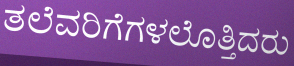
ತಲೆವರಿಗೆಗಳಲೊತ್ತಿದರು